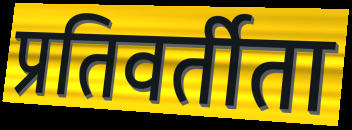
प्रतिवर्तीता